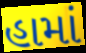
હામાં